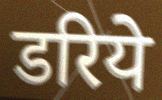
डरिये